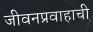
जीवनप्रवाहाची